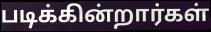
படிக்கின்றார்கள்